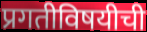
प्रगतीविषयीची